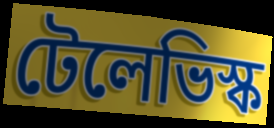
টেলেভিস্ক